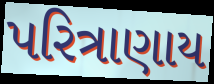
પરિત્રાણાય